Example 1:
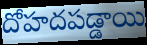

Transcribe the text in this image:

దోహదపడ్డాయి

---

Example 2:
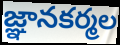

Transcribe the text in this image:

జ్ఞానకర్మల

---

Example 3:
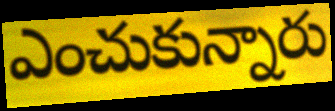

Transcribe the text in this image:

ఎంచుకున్నారు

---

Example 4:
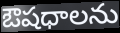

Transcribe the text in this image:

ఔషధాలను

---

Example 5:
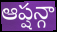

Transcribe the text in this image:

ఆప్షన్గా